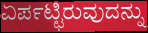
ಏರ್ಪಟ್ಟಿರುವುದನ್ನು